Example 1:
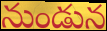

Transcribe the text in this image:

నుండున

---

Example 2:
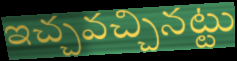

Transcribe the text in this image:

ఇచ్చవచ్చినట్టు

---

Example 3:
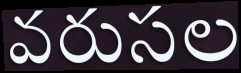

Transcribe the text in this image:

వరుసల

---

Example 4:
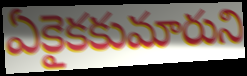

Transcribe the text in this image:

ఏకైకకుమారుని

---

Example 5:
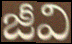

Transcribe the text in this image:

జీవి